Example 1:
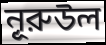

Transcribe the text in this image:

নূরুউল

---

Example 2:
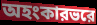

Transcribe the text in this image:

অহংকারভরে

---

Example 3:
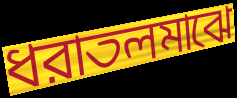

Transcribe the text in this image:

ধরাতলমাঝে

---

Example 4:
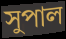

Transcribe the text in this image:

সুপাল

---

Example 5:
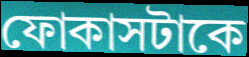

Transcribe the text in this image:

ফোকাসটাকে